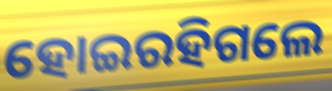
ହୋଇରହିଗଲେ